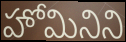
హోమినిని